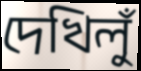
দেখিলুঁ